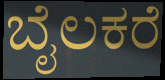
ಬೈಲಕರೆ